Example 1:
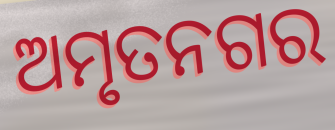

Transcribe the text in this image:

ଅମୃତନଗର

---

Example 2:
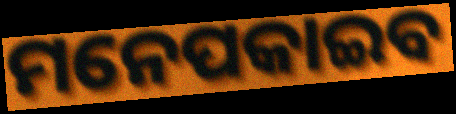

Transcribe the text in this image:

ମନେପକାଇବ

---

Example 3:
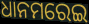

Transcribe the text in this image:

ଧାନମରେଇ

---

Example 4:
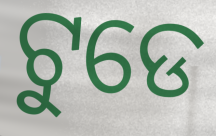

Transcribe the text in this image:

ଟୁଡେ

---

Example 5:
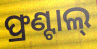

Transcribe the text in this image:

ଫ୍ରଣ୍ଟାଲ୍